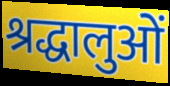
श्रद्धालुओं